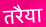
तरैया